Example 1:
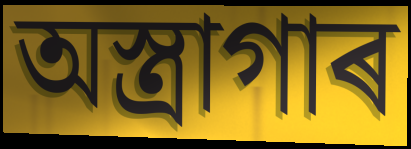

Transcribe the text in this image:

অস্ত্ৰাগাৰ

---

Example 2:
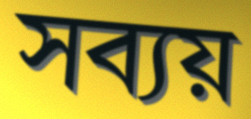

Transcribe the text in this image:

সব্যয়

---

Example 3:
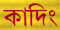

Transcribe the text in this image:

কাদিং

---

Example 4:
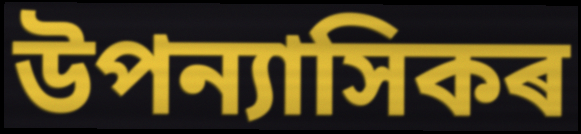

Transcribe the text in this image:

উপন্যাসিকৰ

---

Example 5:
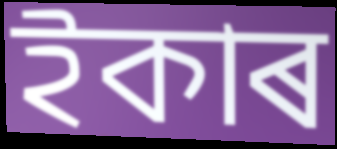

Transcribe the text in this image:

ইকাৰ